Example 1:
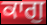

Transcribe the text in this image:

ਕਾਗੁ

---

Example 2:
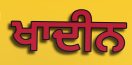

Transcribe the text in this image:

ਖਾਦੀਨ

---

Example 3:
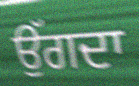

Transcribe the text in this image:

ਉੱਗਦਾ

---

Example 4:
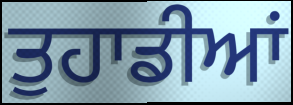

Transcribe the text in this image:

ਤੁਹਾਡੀਆਂ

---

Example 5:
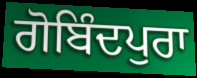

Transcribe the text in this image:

ਗੋਬਿੰਦਪੁਰਾ